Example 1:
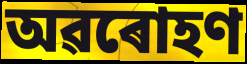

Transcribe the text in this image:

অৱৰোহণ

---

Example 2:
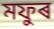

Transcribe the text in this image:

মফুৰ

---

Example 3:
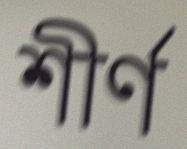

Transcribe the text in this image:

শীৰ্ণ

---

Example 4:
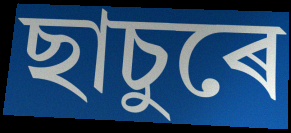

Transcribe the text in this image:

ছাচুৰে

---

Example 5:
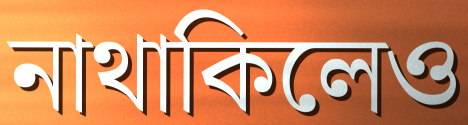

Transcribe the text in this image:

নাথাকিলেও